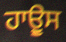
ਹਾਊੁਸ